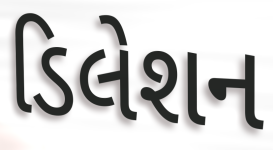
ડિલેશન